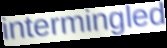
intermingled